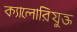
ক্যালোরিযুক্ত